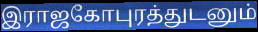
இராஜகோபுரத்துடனும்